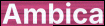
Ambica